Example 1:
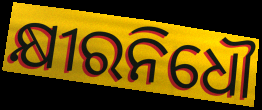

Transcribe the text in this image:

କ୍ଷୀରନିଧୌ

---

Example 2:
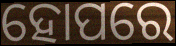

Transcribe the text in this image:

ହୋପରେ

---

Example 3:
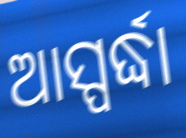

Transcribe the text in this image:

ଆସ୍ପର୍ଦ୍ଧା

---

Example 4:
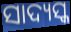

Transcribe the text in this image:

ସାଦ୍ୟସ୍କ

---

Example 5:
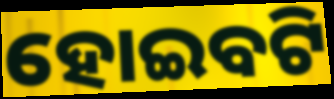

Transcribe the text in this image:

ହୋଇବଟି